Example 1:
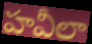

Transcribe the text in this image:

హవీలా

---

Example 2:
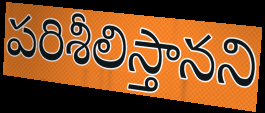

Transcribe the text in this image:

పరిశీలిస్తానని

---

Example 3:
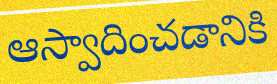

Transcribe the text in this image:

ఆస్వాదించడానికి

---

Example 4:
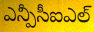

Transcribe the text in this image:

ఎన్పీసీఐఎల్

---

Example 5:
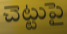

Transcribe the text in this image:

చెట్టుపై